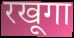
रखूगा